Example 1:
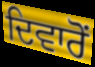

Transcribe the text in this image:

ਦਿਵਾਰੋਂ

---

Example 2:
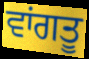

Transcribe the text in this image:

ਵਾਂਗਤੂ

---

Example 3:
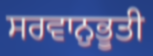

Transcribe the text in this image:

ਸਰਵਾਨੁਭੂਤੀ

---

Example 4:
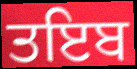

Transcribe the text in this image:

ਤਇਬ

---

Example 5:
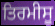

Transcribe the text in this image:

ਤਿਰਮੀਸੂ